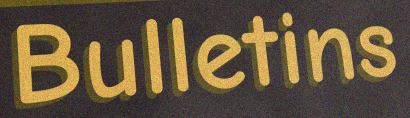
Bulletins